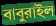
বাবুরাইল